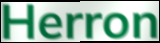
Herron